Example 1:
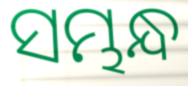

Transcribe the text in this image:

ସମ୍ଭନ୍ଧ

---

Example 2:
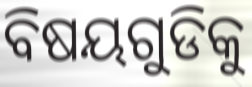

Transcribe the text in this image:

ବିଷୟଗୁଡିକୁ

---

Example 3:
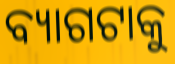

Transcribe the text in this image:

ବ୍ୟାଗଟାକୁ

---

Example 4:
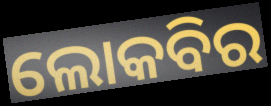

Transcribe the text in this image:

ଲୋକବିର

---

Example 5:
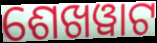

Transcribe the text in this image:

ଶେଖୱାଟ